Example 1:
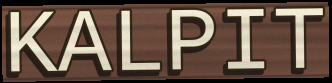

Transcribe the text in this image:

KALPIT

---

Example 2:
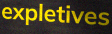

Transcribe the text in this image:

expletives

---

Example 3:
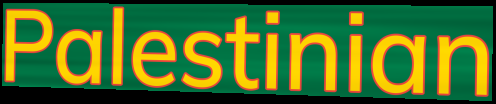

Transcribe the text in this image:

Palestinian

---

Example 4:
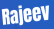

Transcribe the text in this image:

Rajeev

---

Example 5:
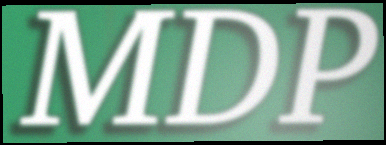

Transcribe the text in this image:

MDP